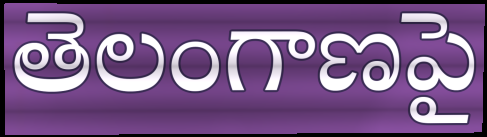
తెలంగాణపై